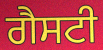
ਗੈਸਟੀ